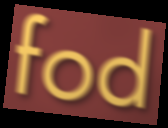
fod